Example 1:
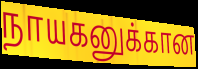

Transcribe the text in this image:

நாயகனுக்கான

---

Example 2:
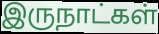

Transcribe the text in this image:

இருநாட்கள்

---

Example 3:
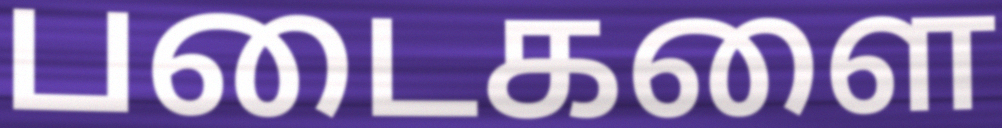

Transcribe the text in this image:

படைகளை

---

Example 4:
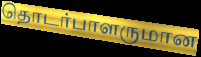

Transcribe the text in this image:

தொடர்பாளருமான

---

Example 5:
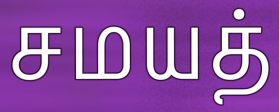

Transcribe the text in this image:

சமயத்